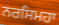
ਨਰਸਿਮਹਾ